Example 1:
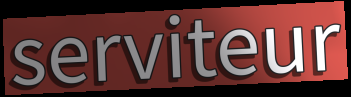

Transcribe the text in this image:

serviteur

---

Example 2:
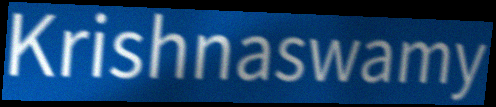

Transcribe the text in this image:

Krishnaswamy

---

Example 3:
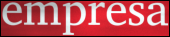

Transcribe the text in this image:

empresa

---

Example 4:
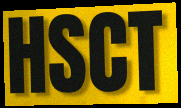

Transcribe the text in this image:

HSCT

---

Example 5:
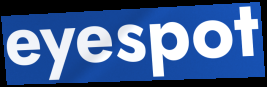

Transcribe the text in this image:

eyespot